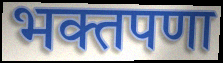
भक्तपणा